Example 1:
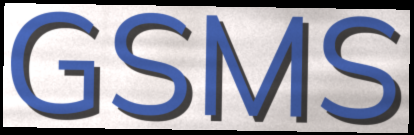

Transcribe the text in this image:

GSMS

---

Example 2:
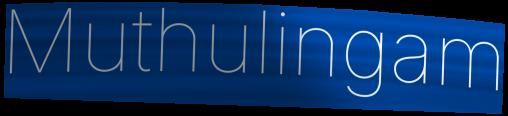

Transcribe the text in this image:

Muthulingam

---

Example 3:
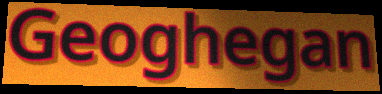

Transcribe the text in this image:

Geoghegan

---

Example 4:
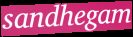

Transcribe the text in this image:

sandhegam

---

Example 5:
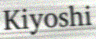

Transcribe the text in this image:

Kiyoshi